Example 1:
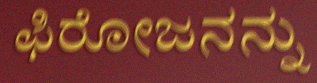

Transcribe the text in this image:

ಫಿರೋಜನನ್ನು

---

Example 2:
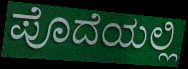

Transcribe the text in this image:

ಪೊದೆಯಲ್ಲಿ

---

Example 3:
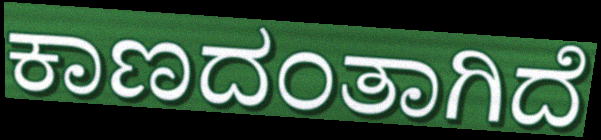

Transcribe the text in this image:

ಕಾಣದಂತಾಗಿದೆ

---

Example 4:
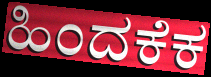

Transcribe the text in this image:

ಹಿಂದಕೆಕ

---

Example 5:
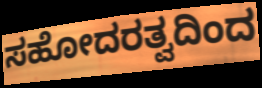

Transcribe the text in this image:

ಸಹೋದರತ್ವದಿಂದ